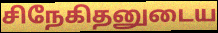
சிநேகிதனுடைய